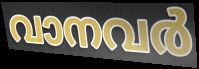
വാനവർ